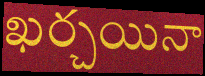
ఖర్చయినా